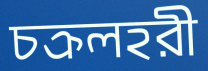
চক্রলহরী